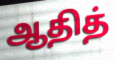
ஆதித்